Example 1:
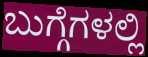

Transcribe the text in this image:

ಬುಗ್ಗೆಗಳಲ್ಲಿ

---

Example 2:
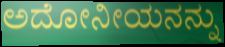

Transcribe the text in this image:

ಅದೋನೀಯನನ್ನು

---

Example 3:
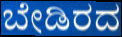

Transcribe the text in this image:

ಬೇಡಿರದ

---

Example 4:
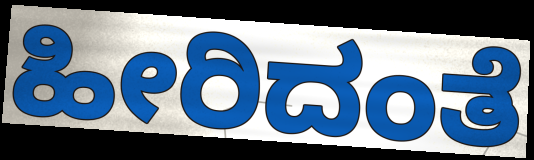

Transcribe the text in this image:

ಹೀರಿದಂತೆ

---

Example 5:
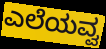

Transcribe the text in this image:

ಎಲೆಯವ್ವ